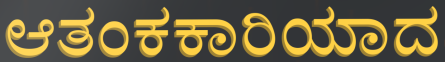
ಆತಂಕಕಾರಿಯಾದ